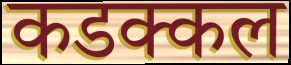
कडक्कल